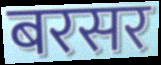
बरसर